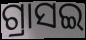
ଗ୍ରାସଇ